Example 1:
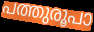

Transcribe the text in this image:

പത്തുരൂപാ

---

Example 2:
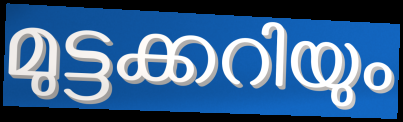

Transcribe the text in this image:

മുട്ടക്കറിയും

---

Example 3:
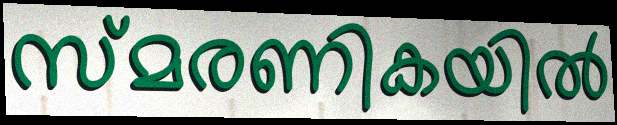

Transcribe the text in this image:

സ്മരണികയിൽ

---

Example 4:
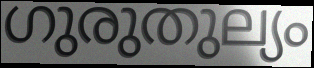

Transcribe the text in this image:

ഗുരുതുല്യം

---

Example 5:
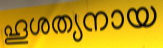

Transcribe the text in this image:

ഹൂശത്യനായ